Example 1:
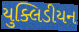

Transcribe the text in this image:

યુક્લિડીયન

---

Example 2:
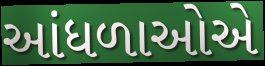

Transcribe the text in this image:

આંધળાઓએ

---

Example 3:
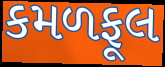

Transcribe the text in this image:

કમળફૂલ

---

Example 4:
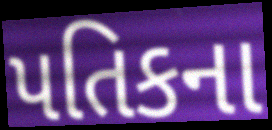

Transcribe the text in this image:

પતિકના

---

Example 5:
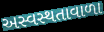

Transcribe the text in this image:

અસ્વસ્થતાવાળા